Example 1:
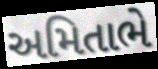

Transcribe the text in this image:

અમિતાભે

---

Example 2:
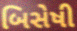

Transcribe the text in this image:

બિસેષી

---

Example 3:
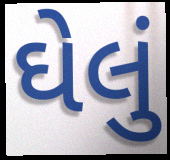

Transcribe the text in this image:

ઘેલું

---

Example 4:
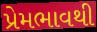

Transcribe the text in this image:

પ્રેમભાવથી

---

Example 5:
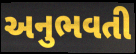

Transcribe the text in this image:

અનુભવતી